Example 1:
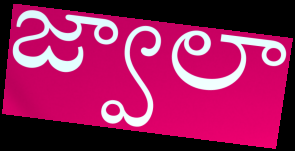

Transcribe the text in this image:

జ్వాలా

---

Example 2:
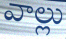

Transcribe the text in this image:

వాల్లు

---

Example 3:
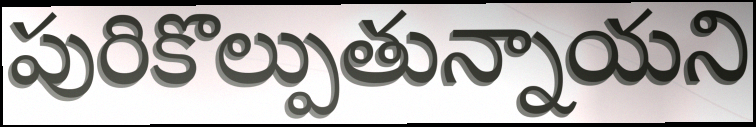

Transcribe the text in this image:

పురికొల్పుతున్నాయని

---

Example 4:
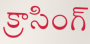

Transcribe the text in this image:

క్రాసింగ్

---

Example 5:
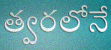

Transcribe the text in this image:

త్వరలోనే